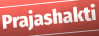
Prajashakti